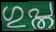
ഗുപ്ത